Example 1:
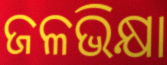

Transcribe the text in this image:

ଜଳଭିକ୍ଷା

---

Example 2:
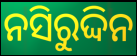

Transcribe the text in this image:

ନସିରୁଦ୍ଦିନ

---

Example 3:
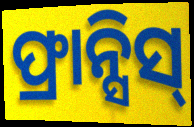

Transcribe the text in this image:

ଫ୍ରାନ୍ସିସ୍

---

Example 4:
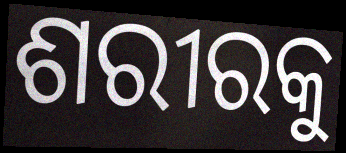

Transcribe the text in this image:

ଶରୀରକୁ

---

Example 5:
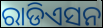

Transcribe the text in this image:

ରାଡିଏସନ